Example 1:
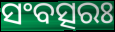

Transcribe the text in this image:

ସଂବତ୍ସରଃ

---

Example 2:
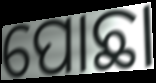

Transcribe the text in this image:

ପୋଛା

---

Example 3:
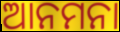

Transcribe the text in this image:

ଆନମନା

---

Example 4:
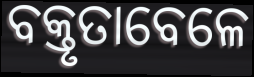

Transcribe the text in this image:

ବକ୍ତୃତାବେଳେ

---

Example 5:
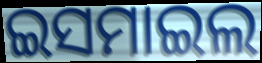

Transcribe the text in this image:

ଇସମାଇଲ